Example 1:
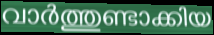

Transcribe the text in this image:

വാർത്തുണ്ടാക്കിയ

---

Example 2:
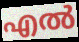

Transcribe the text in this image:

എൽ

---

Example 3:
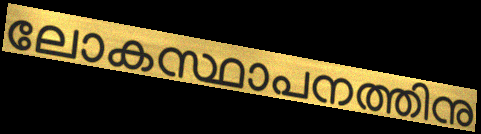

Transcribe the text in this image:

ലോകസ്ഥാപനത്തിനു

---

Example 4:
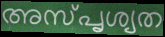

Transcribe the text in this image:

അസ്പൃശ്യത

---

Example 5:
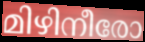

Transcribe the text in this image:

മിഴിനീരോ